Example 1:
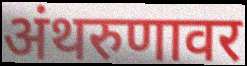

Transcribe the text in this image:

अंथरुणावर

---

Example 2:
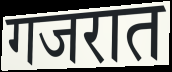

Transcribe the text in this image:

गजरात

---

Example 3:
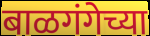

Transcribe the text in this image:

बाळगंगेच्या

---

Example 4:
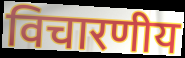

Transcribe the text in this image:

विचारणीय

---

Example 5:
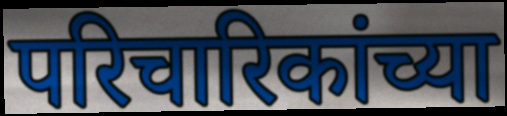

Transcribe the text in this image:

परिचारिकांच्या